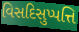
વિસદિસુપ્પત્તિ